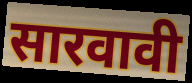
सारवावी